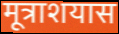
मूत्राशयास